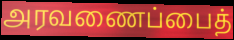
அரவணைப்பைத்